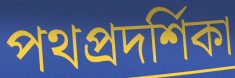
পথপ্রদর্শিকা